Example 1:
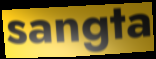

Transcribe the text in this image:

sangta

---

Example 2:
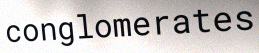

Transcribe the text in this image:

conglomerates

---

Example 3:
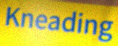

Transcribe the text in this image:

Kneading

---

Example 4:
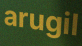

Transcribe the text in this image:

arugil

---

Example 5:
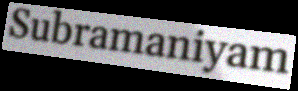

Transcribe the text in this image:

Subramaniyam